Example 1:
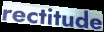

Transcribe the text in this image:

rectitude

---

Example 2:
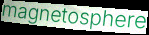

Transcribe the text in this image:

magnetosphere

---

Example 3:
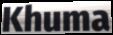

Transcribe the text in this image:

Khuma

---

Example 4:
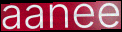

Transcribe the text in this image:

aanee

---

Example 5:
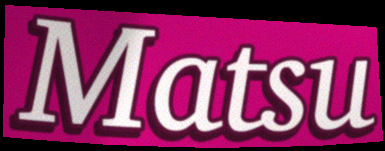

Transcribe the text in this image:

Matsu